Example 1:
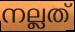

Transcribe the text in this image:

നല്ലത്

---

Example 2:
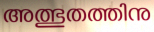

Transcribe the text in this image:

അത്ഭുതത്തിനു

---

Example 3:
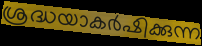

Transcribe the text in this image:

ശ്രദ്ധയാകർഷിക്കുന്ന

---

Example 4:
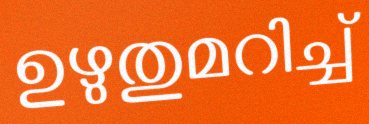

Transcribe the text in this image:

ഉഴുതുമറിച്ച്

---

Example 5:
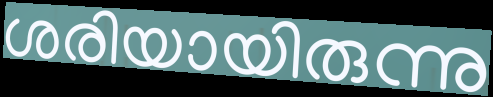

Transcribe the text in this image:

ശരിയായിരുന്നു